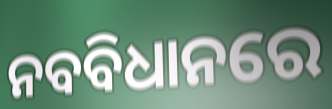
ନବବିଧାନରେ